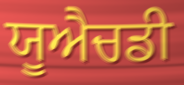
ਯੂਐਚਡੀ